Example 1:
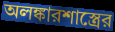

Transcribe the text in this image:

অলঙ্কারশাস্ত্রের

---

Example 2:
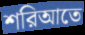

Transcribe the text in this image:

শরিআতে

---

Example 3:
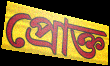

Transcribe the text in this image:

প্রোক্ত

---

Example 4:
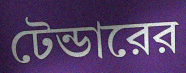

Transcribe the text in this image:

টেন্ডারের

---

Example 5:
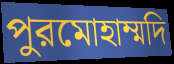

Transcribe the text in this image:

পুরমোহাম্মদি